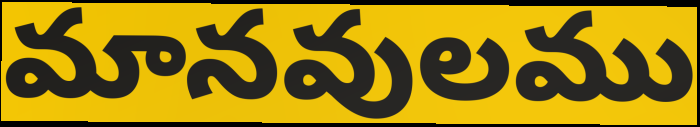
మానవులము